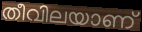
തീവിലയാണ്